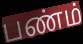
பண்ம்